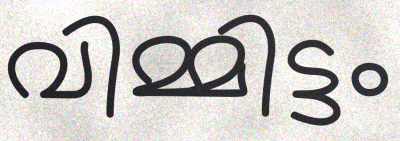
വിമ്മിട്ടം